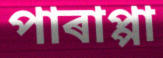
পাৰাপ্পা